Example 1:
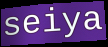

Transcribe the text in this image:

seiya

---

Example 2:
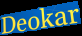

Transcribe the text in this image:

Deokar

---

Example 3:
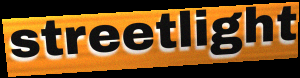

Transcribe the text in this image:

streetlight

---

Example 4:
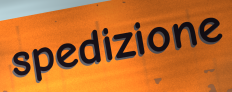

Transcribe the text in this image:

spedizione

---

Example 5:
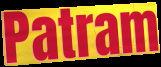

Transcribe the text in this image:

Patram